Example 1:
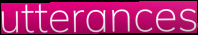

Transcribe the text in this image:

utterances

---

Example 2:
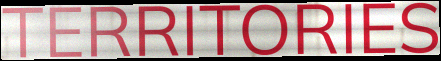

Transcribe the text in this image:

TERRITORIES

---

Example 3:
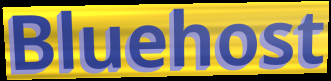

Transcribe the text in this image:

Bluehost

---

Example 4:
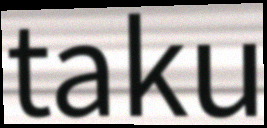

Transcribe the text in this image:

taku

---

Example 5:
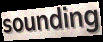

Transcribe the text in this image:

sounding